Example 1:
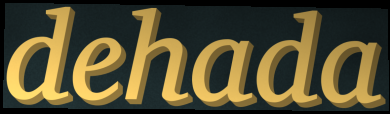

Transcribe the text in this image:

dehada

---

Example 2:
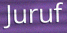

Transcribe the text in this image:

Juruf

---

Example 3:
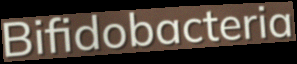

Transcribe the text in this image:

Bifidobacteria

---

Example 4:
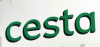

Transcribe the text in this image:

cesta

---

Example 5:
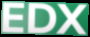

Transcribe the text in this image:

EDX